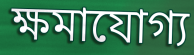
ক্ষমাযোগ্য